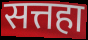
सत्तहा